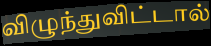
விழுந்துவிட்டால்